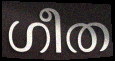
ഗീത